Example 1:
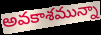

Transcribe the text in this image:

అవకాశమున్నా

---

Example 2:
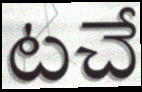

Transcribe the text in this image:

టచే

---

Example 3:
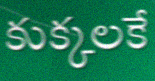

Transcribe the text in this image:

కుక్కలకే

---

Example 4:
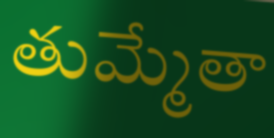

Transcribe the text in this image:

తుమ్మేతా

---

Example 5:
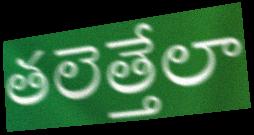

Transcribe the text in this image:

తలెత్తేలా